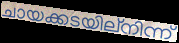
ചായക്കടയില്നിന്ന്